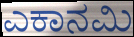
ಎಕಾನಮಿ